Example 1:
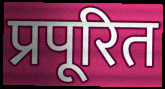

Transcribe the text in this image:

प्रपूरित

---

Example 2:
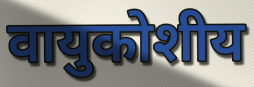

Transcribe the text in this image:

वायुकोशीय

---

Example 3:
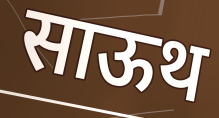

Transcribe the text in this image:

साऊथ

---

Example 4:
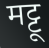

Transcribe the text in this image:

मट्टू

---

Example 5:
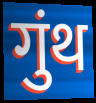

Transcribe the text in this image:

गुंथ